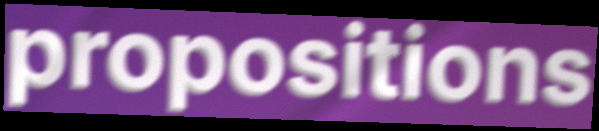
propositions